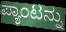
ಪ್ಯಾಂಟನ್ನು